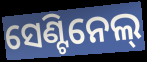
ସେଣ୍ଟିନେଲ୍